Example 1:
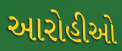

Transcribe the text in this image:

આરોહીઓ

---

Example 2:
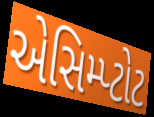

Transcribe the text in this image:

એસિમ્પ્ટોટ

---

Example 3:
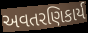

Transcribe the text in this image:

અવતરણિકાર્ય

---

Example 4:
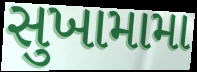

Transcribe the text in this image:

સુખામામા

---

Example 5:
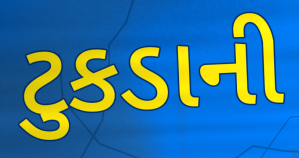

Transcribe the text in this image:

ટુકડાની